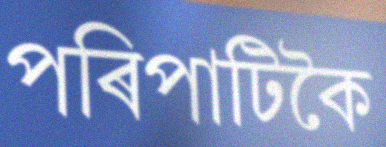
পৰিপাটিকৈ